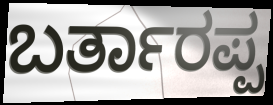
ಬರ್ತಾರಪ್ಪ